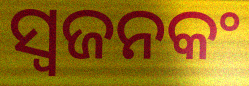
ସ୍ଵଜନକଂ